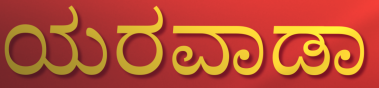
ಯರವಾಡಾ